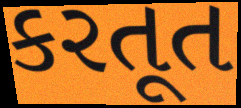
કરતૂત